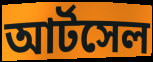
আর্টসেল